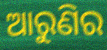
ଆରୁଣିର